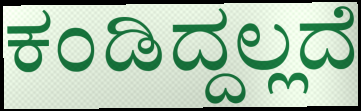
ಕಂಡಿದ್ದಲ್ಲದೆ